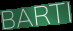
BARTI